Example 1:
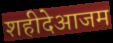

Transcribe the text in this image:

शहीदेआजम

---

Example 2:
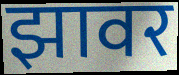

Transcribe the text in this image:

झावर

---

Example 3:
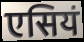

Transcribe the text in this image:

एसियं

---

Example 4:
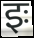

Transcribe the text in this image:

इः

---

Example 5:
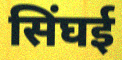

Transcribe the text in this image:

सिंघई